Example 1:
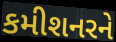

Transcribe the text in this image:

કમીશનરને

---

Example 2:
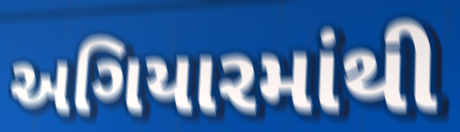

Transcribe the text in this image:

અગિયારમાંથી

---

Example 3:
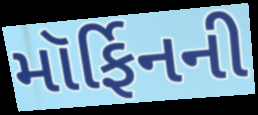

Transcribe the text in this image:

મૉર્ફિનની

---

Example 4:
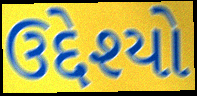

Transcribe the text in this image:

ઉદ્દેશ્યો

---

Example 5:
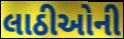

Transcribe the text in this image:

લાઠીઓની